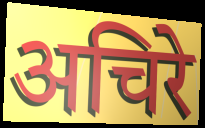
अचिरे